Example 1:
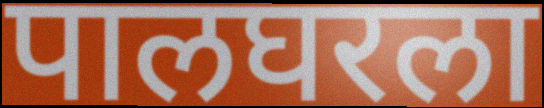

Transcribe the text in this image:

पालघरला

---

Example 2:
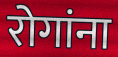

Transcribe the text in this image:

रोगांना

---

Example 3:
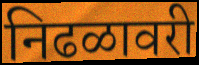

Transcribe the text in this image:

निढळावरी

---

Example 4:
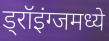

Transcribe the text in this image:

ड्रॉइंग्जमध्ये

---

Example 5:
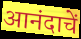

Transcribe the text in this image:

आनंदाचें